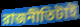
রাজনীতিটাই